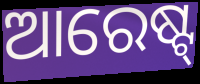
ଆରେଷ୍ଟ୍